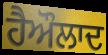
ਹੈਔਲਾਦ